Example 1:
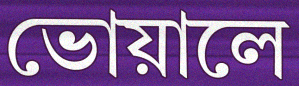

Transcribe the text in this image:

ভোয়ালে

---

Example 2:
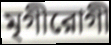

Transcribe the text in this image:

মৃগীরোগী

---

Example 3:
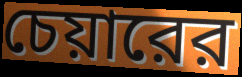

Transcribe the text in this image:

চেয়ারের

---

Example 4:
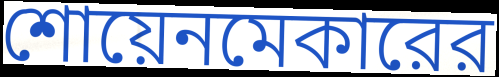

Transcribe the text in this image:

শোয়েনমেকারের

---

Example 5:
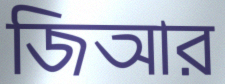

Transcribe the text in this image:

জিআর